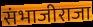
संभाजीराजा